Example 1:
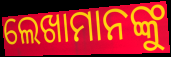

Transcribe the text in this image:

ଲେଖାମାନଙ୍କୁ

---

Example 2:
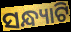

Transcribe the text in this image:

ସନ୍ଧ୍ୟାଟି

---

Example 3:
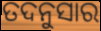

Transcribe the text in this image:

ତଦନୁସାର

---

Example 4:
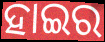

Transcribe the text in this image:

ହାଇର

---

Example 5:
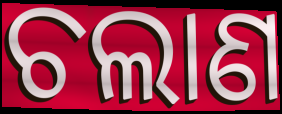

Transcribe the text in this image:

ଚଲାଣ